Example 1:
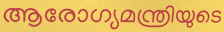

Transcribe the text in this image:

ആരോഗ്യമന്ത്രിയുടെ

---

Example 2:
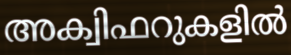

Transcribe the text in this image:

അക്വിഫറുകളിൽ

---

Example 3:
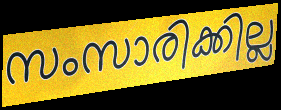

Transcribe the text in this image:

സംസാരിക്കില്ല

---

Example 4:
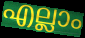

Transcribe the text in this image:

എല്ലാം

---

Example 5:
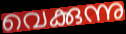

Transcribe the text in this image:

വെക്കുന്നു